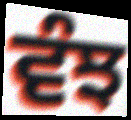
ਵੰਝ